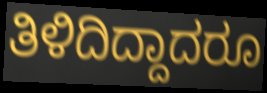
ತಿಳಿದಿದ್ದಾದರೂ